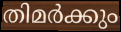
തിമർക്കും